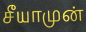
சீயாமுன்